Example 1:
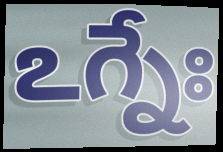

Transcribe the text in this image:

ఽగ్నేః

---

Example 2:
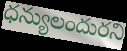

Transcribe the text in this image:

ధన్యులందురని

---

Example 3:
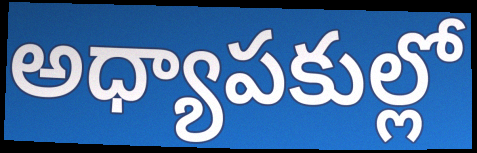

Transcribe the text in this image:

అధ్యాపకుల్లో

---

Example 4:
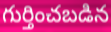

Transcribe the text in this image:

గుర్తించబడిన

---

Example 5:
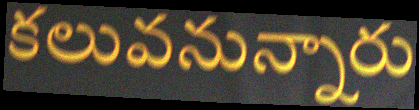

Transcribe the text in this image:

కలువనున్నారు